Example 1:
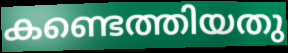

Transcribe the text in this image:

കണ്ടെത്തിയതു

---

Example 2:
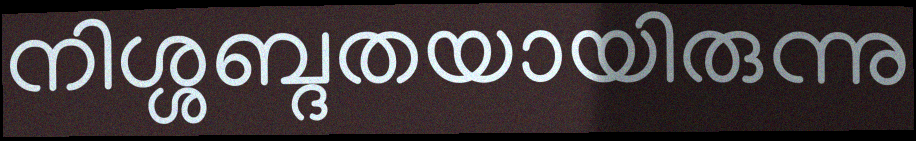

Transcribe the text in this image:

നിശ്ശബ്ദതയായിരുന്നു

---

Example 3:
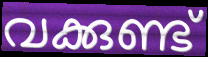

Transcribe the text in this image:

വക്കുണ്ട്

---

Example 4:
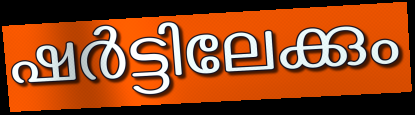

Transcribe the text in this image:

ഷർട്ടിലേക്കും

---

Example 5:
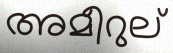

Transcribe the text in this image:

അമീറുല്